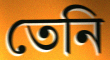
তেনি